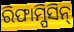
ରିଫାମ୍ପିସିନ୍